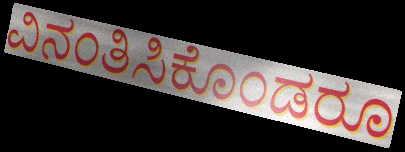
ವಿನಂತಿಸಿಕೊಂಡರೂ